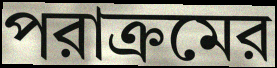
পরাক্রমের